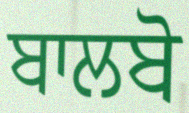
ਬਾਲਬੋ